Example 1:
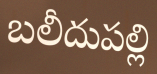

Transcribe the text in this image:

బలీదుపల్లి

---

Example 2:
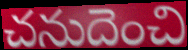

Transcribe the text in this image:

చనుదెంచి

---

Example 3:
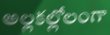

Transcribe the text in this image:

అల్లకల్లోలంగా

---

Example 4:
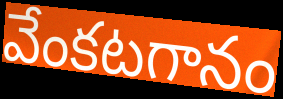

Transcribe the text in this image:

వేంకటగానం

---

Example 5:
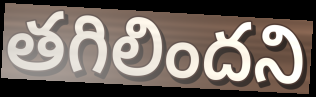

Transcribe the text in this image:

తగిలిందని